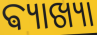
ଵ୍ୟାଖ୍ୟା